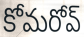
కోమరోవ్